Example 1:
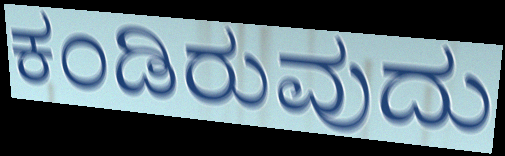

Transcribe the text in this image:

ಕಂಡಿರುವುದು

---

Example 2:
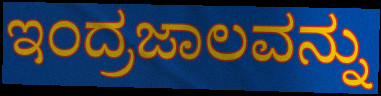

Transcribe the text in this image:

ಇಂದ್ರಜಾಲವನ್ನು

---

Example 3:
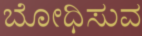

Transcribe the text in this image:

ಬೋಧಿಸುವ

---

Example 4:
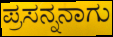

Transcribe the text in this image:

ಪ್ರಸನ್ನನಾಗು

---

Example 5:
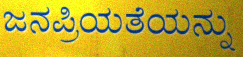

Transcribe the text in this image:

ಜನಪ್ರಿಯತೆಯನ್ನು